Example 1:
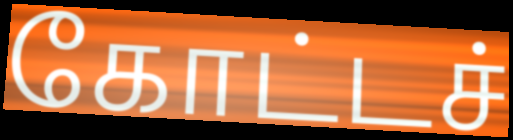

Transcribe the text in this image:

கோட்டச்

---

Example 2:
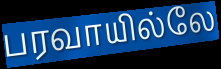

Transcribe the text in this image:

பரவாயில்லே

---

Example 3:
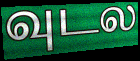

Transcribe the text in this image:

வுடல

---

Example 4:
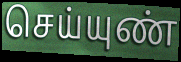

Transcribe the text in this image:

செய்யுண்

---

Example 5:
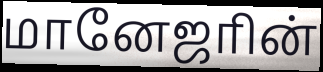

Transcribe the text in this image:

மானேஜரின்